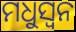
ମଧୁସ୍ୱନ